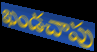
ఖండచాపు